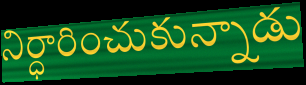
నిర్ధారించుకున్నాడు